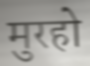
मुरहो